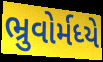
ભ્રુવોર્મધ્યે